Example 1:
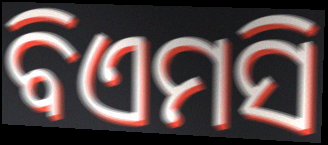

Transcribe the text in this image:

ବିଏମସି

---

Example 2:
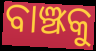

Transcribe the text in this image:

ବାଞ୍ଝକୁ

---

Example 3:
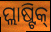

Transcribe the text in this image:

ପ୍ଲାଷ୍ଟିକ୍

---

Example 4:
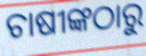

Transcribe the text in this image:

ଚାଷୀଙ୍କଠାରୁ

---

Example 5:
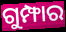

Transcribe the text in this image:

ଗୁମ୍ଫାର